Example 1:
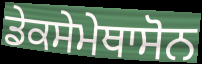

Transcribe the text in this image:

ਡੇਕਸੇਮੇਥਾਸੋਨ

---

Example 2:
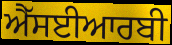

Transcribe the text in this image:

ਐੱਸਈਆਰਬੀ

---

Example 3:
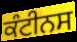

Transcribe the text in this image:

ਕੰਟੀਨਸ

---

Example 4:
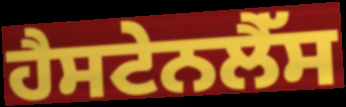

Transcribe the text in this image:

ਹੈਸਟੇਨਲੈੱਸ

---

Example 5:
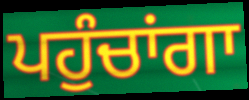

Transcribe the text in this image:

ਪਹੁੰਚਾਂਗਾ